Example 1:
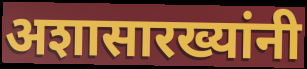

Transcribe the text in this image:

अशासारख्यांनी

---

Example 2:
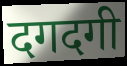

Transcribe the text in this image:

दगदगी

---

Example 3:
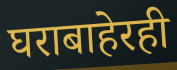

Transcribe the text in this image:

घराबाहेरही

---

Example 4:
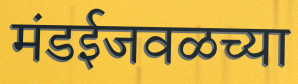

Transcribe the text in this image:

मंडईजवळच्या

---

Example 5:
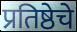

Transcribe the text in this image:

प्रतिष्ठेचे